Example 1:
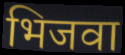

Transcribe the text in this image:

भिजवा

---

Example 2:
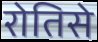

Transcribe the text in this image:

रोतिसे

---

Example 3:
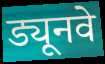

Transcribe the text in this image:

ड्यूनवे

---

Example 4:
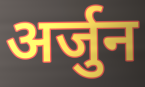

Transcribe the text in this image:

अर्जुन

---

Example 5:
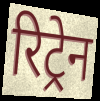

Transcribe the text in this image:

रिट्रेन